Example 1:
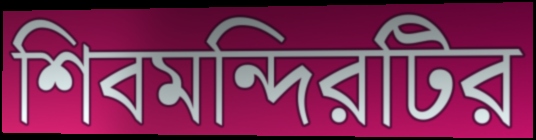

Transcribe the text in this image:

শিবমন্দিরটির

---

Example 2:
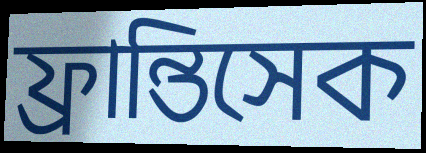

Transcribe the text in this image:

ফ্রান্তিসেক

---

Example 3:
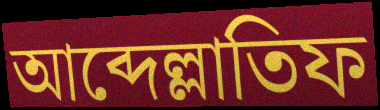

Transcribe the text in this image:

আব্দেল্লাতিফ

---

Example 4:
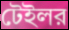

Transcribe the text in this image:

টেইলর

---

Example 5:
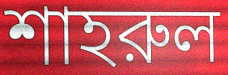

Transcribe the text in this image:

শাহরুল